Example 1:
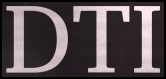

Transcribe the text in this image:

DTI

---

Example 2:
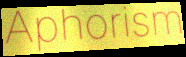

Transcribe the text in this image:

Aphorism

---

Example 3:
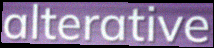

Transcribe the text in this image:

alterative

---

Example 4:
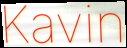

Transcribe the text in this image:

Kavin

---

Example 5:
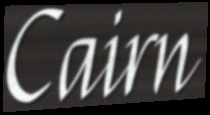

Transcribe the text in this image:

Cairn